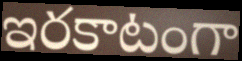
ఇరకాటంగా